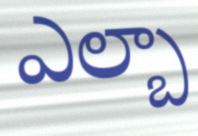
ఎల్బా